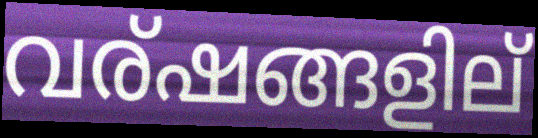
വര്ഷങ്ങളില്